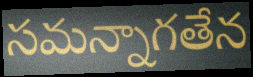
సమన్నాగతేన